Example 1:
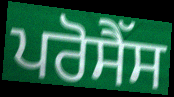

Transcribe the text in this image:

ਪਰੋਸੈੱਸ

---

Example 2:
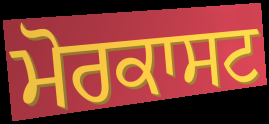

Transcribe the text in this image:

ਮੋਰਕਾਸਟ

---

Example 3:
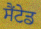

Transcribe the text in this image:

ਸੈਂਟੇਡ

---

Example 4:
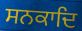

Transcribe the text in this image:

ਸਨਕਾਦਿ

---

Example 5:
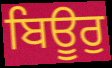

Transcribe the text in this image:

ਬਿਊਰੁ